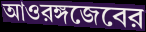
আওরঙ্গজেবের